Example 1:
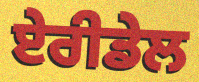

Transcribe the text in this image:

ਏਰੀਡੇਲ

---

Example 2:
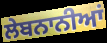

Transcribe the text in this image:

ਲੇਬਨਾਨੀਆਂ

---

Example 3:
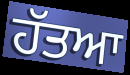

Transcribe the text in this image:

ਹੱਤਆ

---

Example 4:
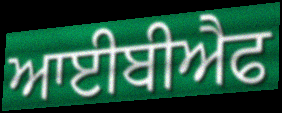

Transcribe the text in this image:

ਆਈਬੀਐਫ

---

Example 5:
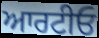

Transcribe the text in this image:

ਆਰਟੀਓ